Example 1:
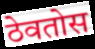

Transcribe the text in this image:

ठेवतोस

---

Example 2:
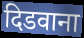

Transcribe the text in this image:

दिडवाना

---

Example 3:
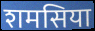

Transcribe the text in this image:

शमसिया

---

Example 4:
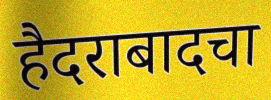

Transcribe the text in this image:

हैदराबादचा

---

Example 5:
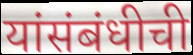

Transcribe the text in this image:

यांसंबंधीची